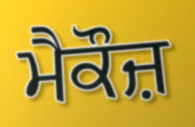
ਮੈਕੌਜ਼